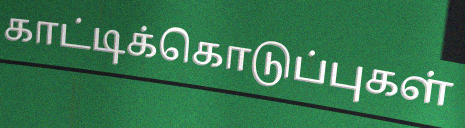
காட்டிக்கொடுப்புகள்